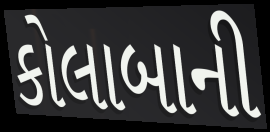
કોલાબાની